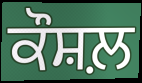
ਕੌਸ਼ਲ਼